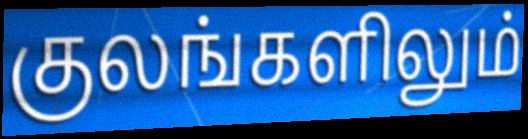
குலங்களிலும்